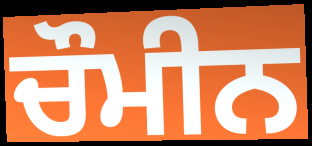
ਚੌਮੀਨ